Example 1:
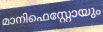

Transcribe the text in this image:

മാനിഫെസ്റ്റോയും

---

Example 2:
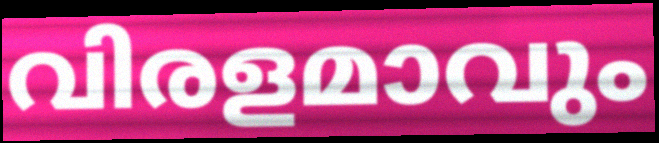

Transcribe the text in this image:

വിരളമാവും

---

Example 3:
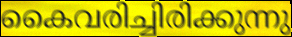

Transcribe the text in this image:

കൈവരിച്ചിരിക്കുന്നു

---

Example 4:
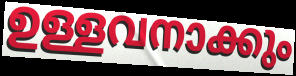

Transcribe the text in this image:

ഉള്ളവനാക്കും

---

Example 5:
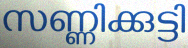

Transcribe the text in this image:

സണ്ണിക്കുട്ടി